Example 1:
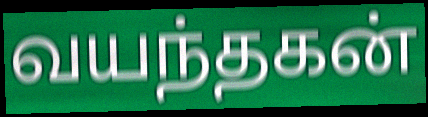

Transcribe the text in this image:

வயந்தகன்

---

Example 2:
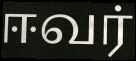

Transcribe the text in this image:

ஈவர்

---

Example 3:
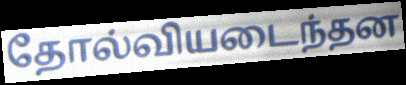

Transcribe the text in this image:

தோல்வியடைந்தன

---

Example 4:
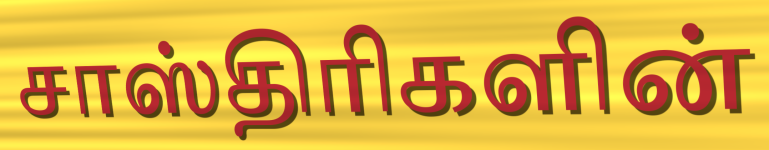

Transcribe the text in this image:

சாஸ்திரிகளின்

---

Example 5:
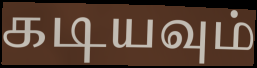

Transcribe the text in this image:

கடியவும்